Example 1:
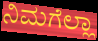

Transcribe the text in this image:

ನಿಮಗೆಲ್ಲಾ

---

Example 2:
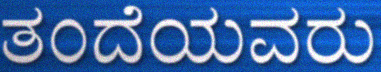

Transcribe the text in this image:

ತಂದೆಯವರು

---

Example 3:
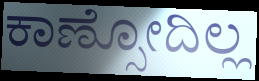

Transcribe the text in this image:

ಕಾಣ್ಸೋದಿಲ್ಲ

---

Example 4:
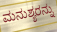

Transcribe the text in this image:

ಮನುಶ್ಯರನ್ನು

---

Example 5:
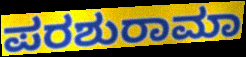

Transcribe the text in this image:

ಪರಶುರಾಮಾ